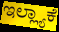
ಇಲ್ಲ್ಯಾಕೆ